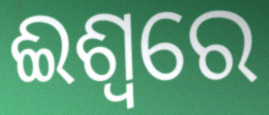
ଈଶ୍ଵରେ